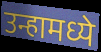
उन्हामध्ये